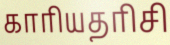
காரியதரிசி